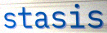
stasis